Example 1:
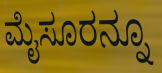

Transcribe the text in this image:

ಮೈಸೂರನ್ನೂ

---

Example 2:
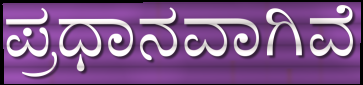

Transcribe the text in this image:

ಪ್ರಧಾನವಾಗಿವೆ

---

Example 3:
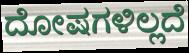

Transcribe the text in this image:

ದೋಷಗಳಿಲ್ಲದೆ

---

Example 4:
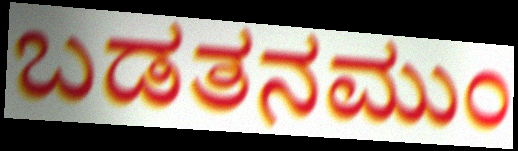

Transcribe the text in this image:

ಬಡತನಮುಂ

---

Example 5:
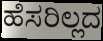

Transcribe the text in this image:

ಹೆಸರಿಲ್ಲದ